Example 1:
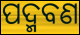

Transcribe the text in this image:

ପଦ୍ମବଣ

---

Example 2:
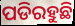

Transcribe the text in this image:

ପଡିରହୁଛି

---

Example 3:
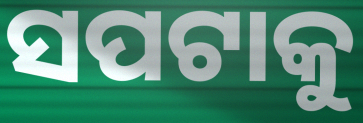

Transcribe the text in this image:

ସପଟାକୁ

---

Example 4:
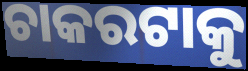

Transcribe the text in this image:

ଚାକରଟାକୁ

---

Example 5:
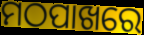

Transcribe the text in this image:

ମଠପାଖରେ